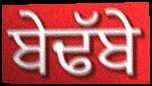
ਬੇਢੱਬੇ